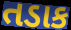
તડાક